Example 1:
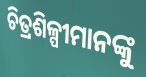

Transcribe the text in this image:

ଚିତ୍ରଶିଳ୍ପୀମାନଙ୍କୁ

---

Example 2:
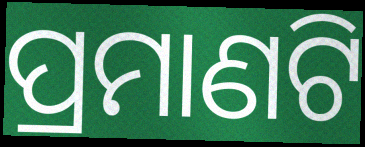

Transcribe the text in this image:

ପ୍ରମାଣଟି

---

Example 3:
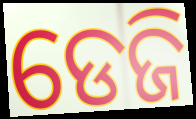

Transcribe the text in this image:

ଡେଜି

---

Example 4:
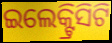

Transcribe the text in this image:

ଇଲେକ୍ଟ୍ରିସିଟି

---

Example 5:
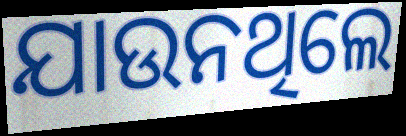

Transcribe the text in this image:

ଯାଉନଥିଲେ